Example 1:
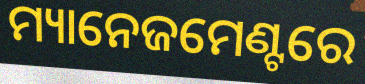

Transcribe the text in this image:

ମ୍ୟାନେଜମେଣ୍ଟରେ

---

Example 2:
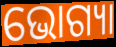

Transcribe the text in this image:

ଭୋଗ୍ୟା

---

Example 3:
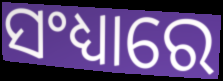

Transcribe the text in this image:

ସଂଧ୍ଯାରେ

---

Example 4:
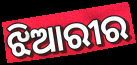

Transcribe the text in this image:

ଝିଆରୀର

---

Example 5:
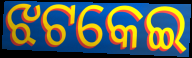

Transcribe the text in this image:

ଝଟକେଇ